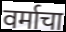
वर्माचा